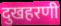
दुखहरणी